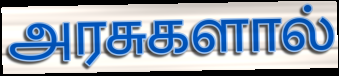
அரசுகளால்